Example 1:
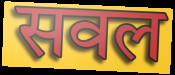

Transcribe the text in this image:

सवल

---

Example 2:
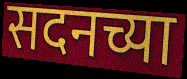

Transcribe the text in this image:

सदनच्या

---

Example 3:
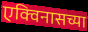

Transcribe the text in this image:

एक्विनासच्या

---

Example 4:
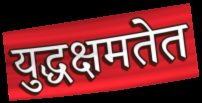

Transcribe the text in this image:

युद्धक्षमतेत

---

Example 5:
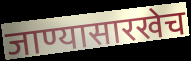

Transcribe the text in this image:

जाण्यासारखेच